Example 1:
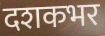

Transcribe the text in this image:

दशकभर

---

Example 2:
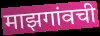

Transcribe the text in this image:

माझगांवची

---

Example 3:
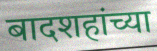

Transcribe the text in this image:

बादशहांच्या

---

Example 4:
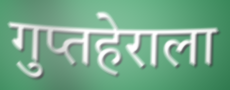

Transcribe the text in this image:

गुप्तहेराला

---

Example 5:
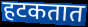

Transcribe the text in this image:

हटकतात